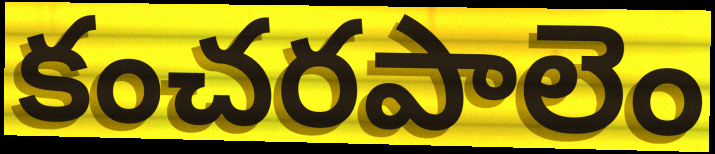
కంచరపాలెం